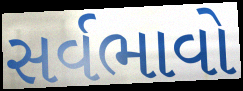
સર્વભાવો